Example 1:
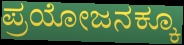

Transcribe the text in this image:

ಪ್ರಯೋಜನಕ್ಕೂ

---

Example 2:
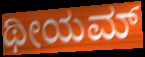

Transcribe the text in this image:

ಥೀಯಮ್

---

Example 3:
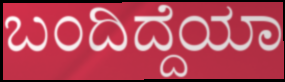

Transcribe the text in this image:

ಬಂದಿದ್ದೆಯಾ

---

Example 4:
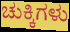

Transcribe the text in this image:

ಚುಕ್ಕಿಗಳು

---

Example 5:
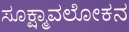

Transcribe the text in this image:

ಸೂಕ್ಷ್ಮಾವಲೋಕನ